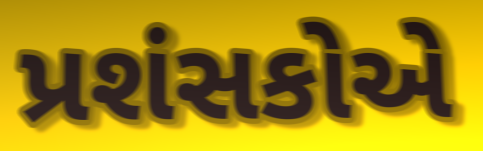
પ્રશંસકોએ